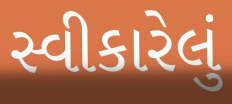
સ્વીકારેલું